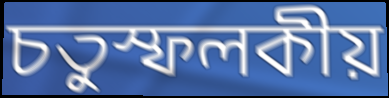
চতুস্ফলকীয়